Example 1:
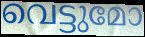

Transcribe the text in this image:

വെട്ടുമോ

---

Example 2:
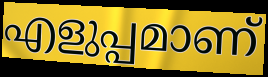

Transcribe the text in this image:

എളുപ്പമാണ്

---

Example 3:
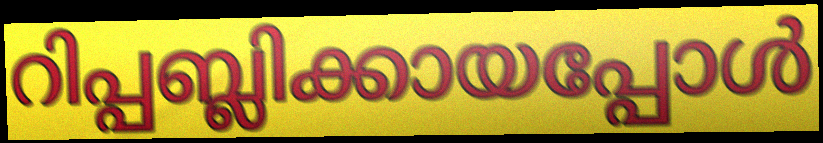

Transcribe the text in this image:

റിപ്പബ്ലിക്കായപ്പോൾ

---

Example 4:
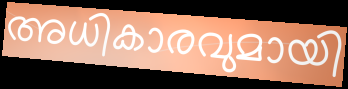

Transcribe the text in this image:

അധികാരവുമായി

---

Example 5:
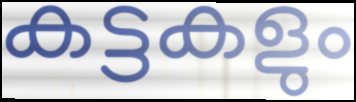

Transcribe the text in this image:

കട്ടകളും